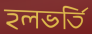
হলভর্তি